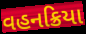
વહનક્રિયા